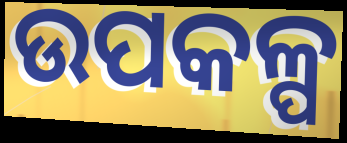
ଉପକଳ୍ପ